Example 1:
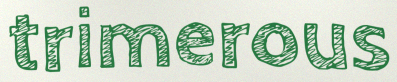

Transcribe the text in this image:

trimerous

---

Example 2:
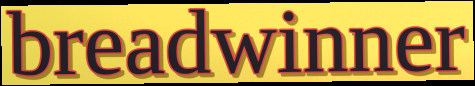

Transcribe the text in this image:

breadwinner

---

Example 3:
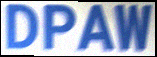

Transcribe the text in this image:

DPAW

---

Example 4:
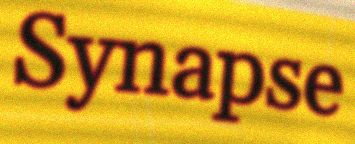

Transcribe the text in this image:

Synapse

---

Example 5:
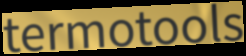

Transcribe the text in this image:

termotools